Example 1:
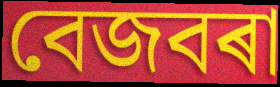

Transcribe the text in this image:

বেজবৰা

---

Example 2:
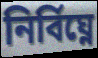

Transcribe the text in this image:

নিৰ্বিঘ্নে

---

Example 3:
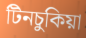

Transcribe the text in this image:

টিনচুকিয়া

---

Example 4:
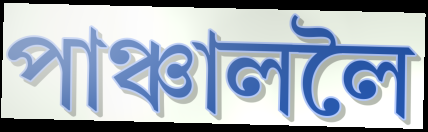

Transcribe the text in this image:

পাঞ্চাললৈ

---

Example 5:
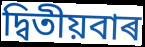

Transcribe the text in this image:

দ্বিতীয়বাৰ